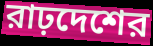
রাঢ়দেশের